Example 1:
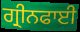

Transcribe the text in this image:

ਗ੍ਰੀਨਫਾਈ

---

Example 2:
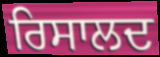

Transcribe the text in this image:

ਰਿਸਾਲਦ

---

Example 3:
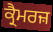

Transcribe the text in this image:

ਕ੍ਰੈਮਰਜ਼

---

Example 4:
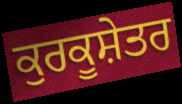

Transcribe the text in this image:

ਕੁਰਕੂਸ਼ੇਤਰ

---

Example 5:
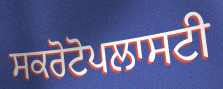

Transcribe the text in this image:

ਸਕਰੋਟੋਪਲਾਸਟੀ